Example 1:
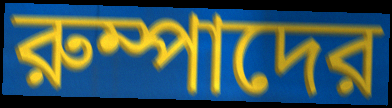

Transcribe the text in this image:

রুম্পাদের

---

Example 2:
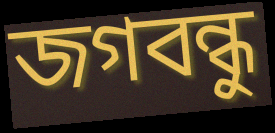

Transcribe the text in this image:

জগবন্ধু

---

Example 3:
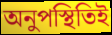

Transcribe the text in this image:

অনুপস্থিতিই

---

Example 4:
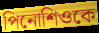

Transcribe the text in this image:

পিনোশিওকে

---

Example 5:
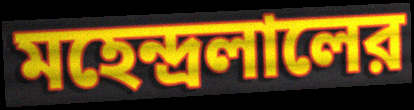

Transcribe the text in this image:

মহেন্দ্রলালের